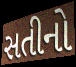
સતીનો